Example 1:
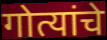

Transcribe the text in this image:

गोत्यांचे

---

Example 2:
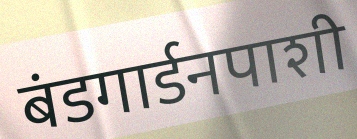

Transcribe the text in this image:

बंडगार्डनपाशी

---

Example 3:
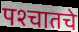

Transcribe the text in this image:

पश्चातचे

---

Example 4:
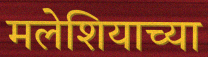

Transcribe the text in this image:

मलेशियाच्या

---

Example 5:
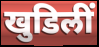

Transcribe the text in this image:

खुडिलीं